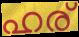
ഹര്